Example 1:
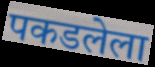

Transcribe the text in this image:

पकडलेला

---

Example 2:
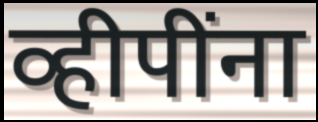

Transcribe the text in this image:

व्हीपींना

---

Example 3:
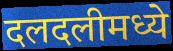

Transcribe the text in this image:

दलदलीमध्ये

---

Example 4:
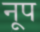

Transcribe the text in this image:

नूप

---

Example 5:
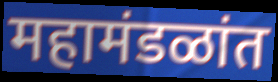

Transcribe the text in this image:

महामंडळांत